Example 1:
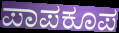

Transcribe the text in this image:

ಪಾಪಕೂಪ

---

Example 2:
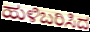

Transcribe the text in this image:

ಹುಳಿಬರಿಸಿದ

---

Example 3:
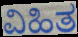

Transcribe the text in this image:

ವಿಹಿತ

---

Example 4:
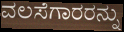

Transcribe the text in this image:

ವಲಸೆಗಾರರನ್ನು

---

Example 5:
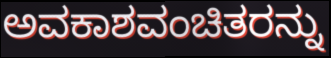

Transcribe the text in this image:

ಅವಕಾಶವಂಚಿತರನ್ನು